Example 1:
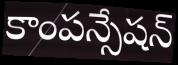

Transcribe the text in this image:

కాంపన్సేషన్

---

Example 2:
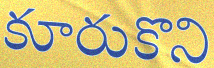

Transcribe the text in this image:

కూరుకొని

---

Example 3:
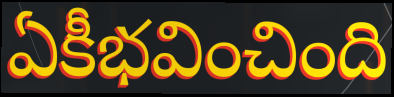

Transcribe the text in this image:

ఏకీభవించింది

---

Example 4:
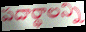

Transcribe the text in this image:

పదార్థాలన్ని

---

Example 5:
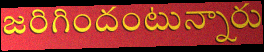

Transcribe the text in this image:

జరిగిందంటున్నారు